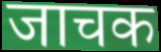
जाचक